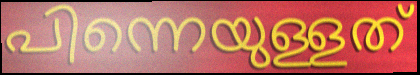
പിന്നെയുള്ളത്